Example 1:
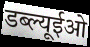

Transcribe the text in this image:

डब्ल्यूईओ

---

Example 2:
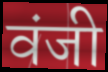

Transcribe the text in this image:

वंजी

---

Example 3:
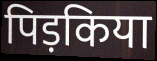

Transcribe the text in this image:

पिड़किया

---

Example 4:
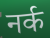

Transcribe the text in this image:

नर्क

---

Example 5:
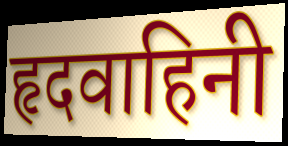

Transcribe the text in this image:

हृदवाहिनी